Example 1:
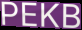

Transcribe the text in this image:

PEKB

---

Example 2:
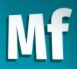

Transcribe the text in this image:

Mf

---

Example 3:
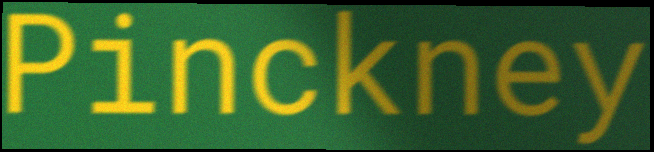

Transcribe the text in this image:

Pinckney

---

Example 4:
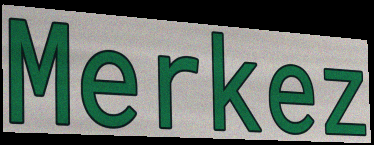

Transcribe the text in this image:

Merkez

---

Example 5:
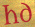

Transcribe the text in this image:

hd